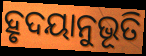
ହୃଦୟାନୁଭୂତି